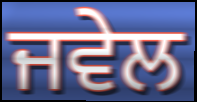
ਜਵੇਲ